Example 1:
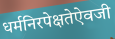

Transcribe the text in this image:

धर्मनिरपेक्षतेऐवजी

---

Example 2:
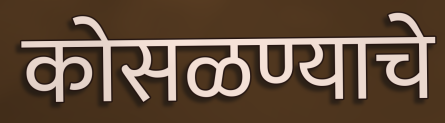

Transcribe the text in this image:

कोसळण्याचे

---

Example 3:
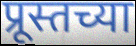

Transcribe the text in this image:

प्रूस्तच्या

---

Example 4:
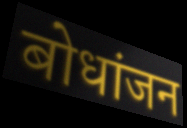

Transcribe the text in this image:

बोधांजन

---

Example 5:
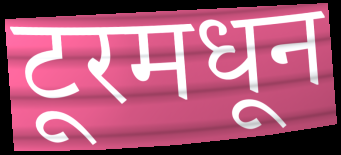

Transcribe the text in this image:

टूरमधून